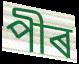
পীৰ